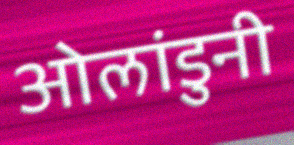
ओलांडुनी